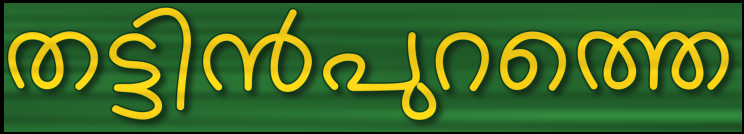
തട്ടിൻപുറത്തെ